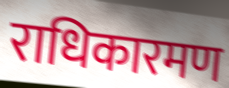
राधिकारमण